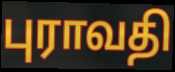
புராவதி